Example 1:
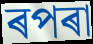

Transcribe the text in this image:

ৰপৰা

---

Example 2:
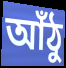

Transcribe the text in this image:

আঁঠু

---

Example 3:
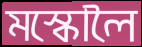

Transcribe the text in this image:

মস্কোলৈ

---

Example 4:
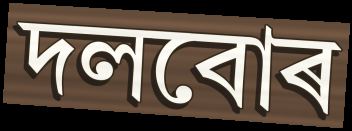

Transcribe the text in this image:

দলবোৰ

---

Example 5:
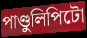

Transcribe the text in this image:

পাণ্ডুলিপিটো